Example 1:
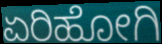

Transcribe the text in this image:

ಏರಿಹೋಗಿ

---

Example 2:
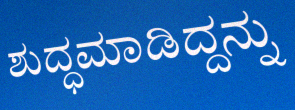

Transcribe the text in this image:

ಶುದ್ಧಮಾಡಿದ್ದನ್ನು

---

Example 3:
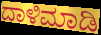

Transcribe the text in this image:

ದಾಳಿಮಾಡಿ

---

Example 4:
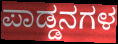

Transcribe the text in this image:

ಪಾಡ್ಡನಗಳ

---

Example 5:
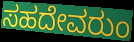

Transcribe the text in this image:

ಸಹದೇವರುಂ